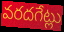
వరదగేట్లు